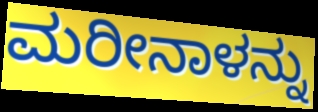
ಮರೀನಾಳನ್ನು